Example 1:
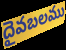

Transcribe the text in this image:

దైవబలము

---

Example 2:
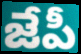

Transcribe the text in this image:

జేపీ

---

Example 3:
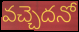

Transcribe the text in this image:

వచ్చెదనో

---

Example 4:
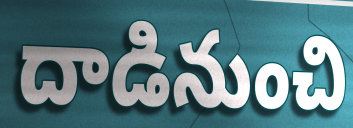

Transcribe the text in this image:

దాడినుంచి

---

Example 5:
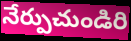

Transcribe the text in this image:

నేర్పుచుండిరి